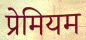
प्रेमियम